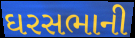
ઘરસભાની